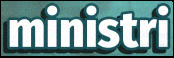
ministri